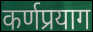
कर्णप्रयाग